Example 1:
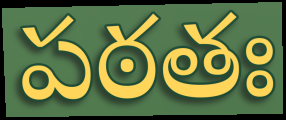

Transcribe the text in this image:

పఠతః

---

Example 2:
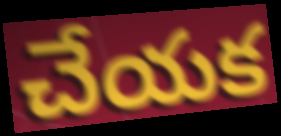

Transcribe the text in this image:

చేయక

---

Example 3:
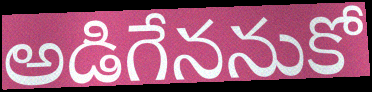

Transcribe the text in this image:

అడిగేననుకో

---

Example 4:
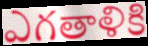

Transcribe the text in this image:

ఎగతాళికి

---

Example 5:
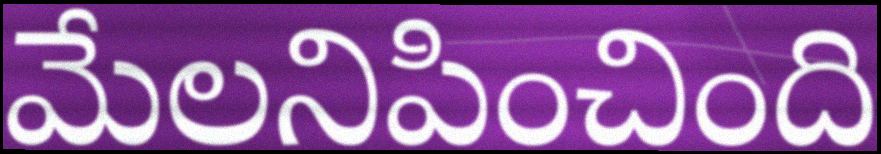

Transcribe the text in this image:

మేలనిపించింది